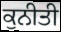
ਕੁਨੀਤੀ